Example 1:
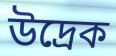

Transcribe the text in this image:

উদ্ৰেক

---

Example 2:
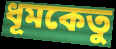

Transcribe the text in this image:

ধূমকেতু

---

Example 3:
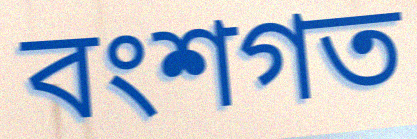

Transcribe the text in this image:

বংশগত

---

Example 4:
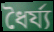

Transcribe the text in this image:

ধৈৰ্য্য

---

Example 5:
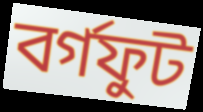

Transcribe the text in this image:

বৰ্গফুট